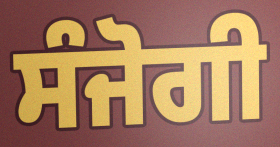
ਸੰਜੋਗੀ